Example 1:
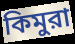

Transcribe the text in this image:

কিমুরা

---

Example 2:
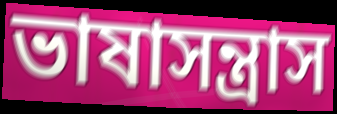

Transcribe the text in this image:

ভাষাসন্ত্রাস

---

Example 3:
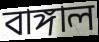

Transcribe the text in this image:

বাঙ্গাল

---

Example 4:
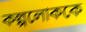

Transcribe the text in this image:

কল্পলোককে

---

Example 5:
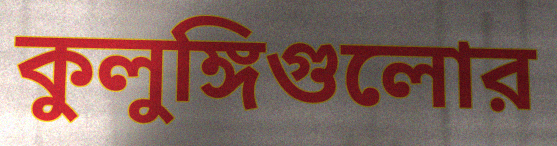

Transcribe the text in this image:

কুলুঙ্গিগুলোর